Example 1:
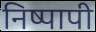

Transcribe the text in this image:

निष्पापी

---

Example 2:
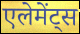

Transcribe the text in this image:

एलेमेंट्स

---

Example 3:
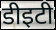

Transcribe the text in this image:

डीइटी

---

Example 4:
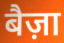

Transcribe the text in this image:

बैज़ा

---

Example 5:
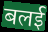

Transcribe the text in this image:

बलई